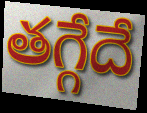
తగ్గేదే